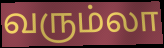
வரும்லா